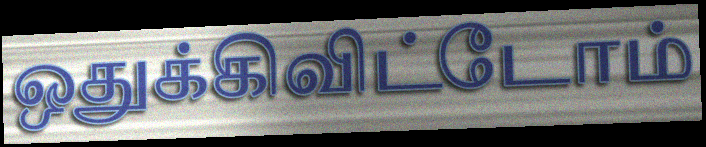
ஒதுக்கிவிட்டோம்